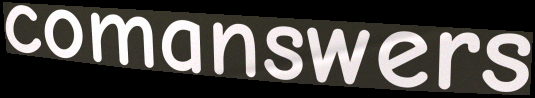
comanswers